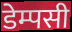
डेम्पसी